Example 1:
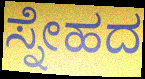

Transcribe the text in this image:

ಸ್ನೇಹದ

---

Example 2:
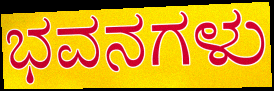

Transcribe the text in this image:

ಭವನಗಳು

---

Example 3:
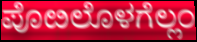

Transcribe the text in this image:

ಪೊೞಲೊಳಗೆಲ್ಲಂ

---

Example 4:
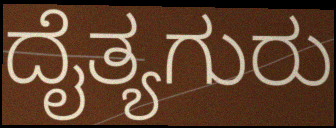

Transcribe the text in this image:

ದೈತ್ಯಗುರು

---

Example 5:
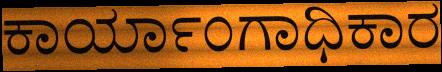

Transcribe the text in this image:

ಕಾರ್ಯಾಂಗಾಧಿಕಾರ